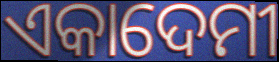
ଏକାଦେମୀ